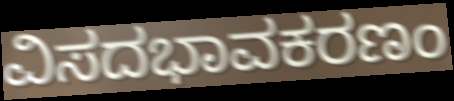
ವಿಸದಭಾವಕರಣಂ